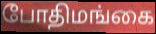
போதிமங்கை